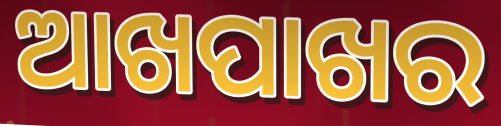
ଆଖପାଖର